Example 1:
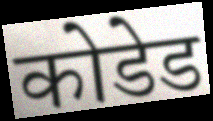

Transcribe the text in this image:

कोडेड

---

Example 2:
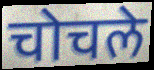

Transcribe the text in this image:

चोचले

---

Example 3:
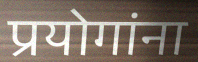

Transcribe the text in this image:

प्रयोगांना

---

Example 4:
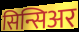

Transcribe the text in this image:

सिन्सिअर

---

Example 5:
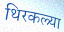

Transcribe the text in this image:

थिरकल्या